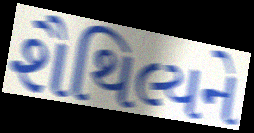
શૈથિલ્યને